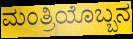
ಮಂತ್ರಿಯೊಬ್ಬನ